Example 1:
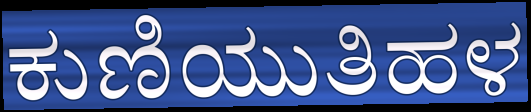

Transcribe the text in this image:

ಕುಣಿಯುತಿಹಳ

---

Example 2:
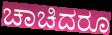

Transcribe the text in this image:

ಚಾಚಿದರೂ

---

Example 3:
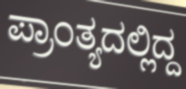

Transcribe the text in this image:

ಪ್ರಾಂತ್ಯದಲ್ಲಿದ್ದ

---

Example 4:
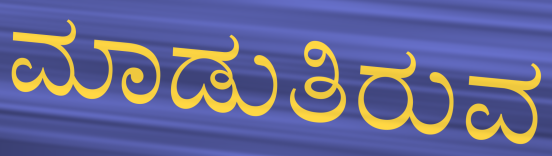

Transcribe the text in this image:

ಮಾಡುತಿರುವ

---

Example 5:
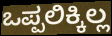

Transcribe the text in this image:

ಒಪ್ಪಲಿಕ್ಕಿಲ್ಲ